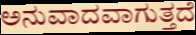
ಅನುವಾದವಾಗುತ್ತದೆ